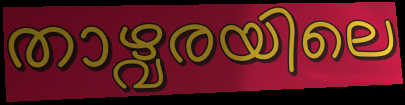
താഴ്വരയിലെ